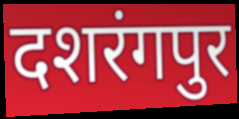
दशरंगपुर